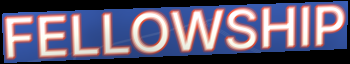
FELLOWSHIP